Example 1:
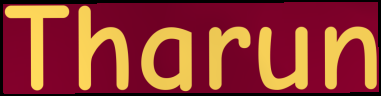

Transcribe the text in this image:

Tharun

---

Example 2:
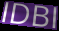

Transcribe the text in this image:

IDBI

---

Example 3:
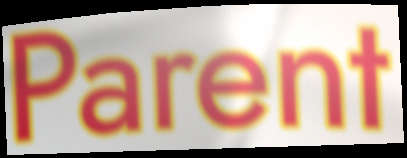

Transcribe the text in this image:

Parent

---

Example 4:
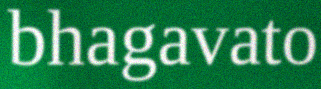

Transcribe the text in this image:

bhagavato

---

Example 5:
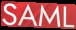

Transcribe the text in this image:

SAML